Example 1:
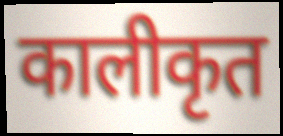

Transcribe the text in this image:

कालीकृत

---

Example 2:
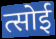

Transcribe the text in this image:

त्सोई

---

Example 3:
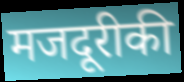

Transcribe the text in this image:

मजदूरीकी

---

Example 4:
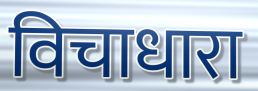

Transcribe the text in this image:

विचाधारा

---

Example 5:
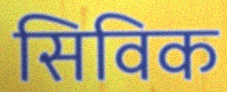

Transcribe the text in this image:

सिविक